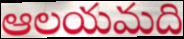
ఆలయమది